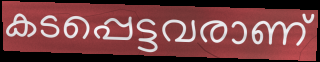
കടപ്പെട്ടവരാണ്